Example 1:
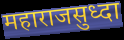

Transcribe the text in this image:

महाराजसुध्दा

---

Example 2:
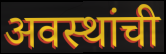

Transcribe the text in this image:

अवस्थांची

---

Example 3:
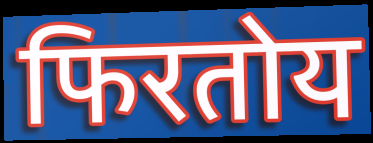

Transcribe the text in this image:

फिरतोय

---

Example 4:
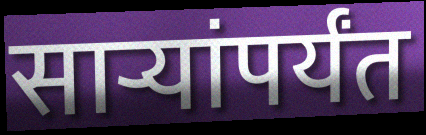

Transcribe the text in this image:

साऱ्यांपर्यंत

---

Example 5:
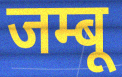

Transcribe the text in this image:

जम्बू